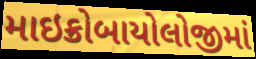
માઇક્રોબાયોલોજીમાં